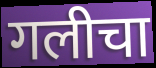
गलीचा